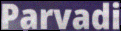
Parvadi